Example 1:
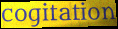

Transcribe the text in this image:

cogitation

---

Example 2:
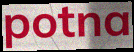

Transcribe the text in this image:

potna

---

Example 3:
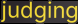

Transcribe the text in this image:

judging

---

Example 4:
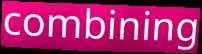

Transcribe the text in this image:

combining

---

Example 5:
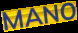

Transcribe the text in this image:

MANO